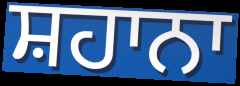
ਸ਼ਹਾਨਾ